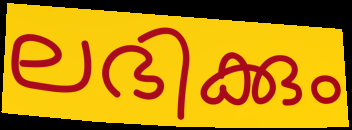
ലഭിക്കും